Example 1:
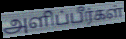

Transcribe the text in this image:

அளிப்பீர்கள்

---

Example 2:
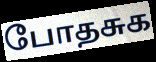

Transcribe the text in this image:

போதசுக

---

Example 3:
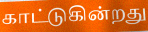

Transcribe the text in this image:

காட்டுகின்றது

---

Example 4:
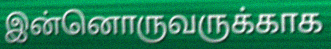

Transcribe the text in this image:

இன்னொருவருக்காக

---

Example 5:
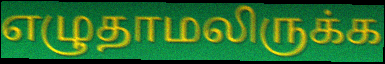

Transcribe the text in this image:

எழுதாமலிருக்க